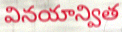
వినయాన్విత